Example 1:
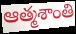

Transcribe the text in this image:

ఆత్మశాంతి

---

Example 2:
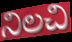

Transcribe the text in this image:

నిలచి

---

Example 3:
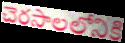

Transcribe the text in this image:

చెరసాలలోనికి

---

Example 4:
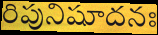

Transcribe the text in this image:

రిపునిషూదనః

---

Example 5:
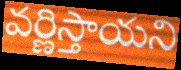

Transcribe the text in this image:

వర్ణిస్తాయని